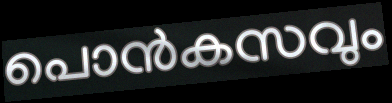
പൊൻകസവും